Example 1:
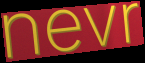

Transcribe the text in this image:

nevr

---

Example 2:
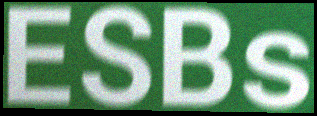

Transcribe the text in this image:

ESBs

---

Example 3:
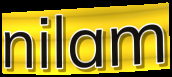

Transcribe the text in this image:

nilam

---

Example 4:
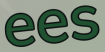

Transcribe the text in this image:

ees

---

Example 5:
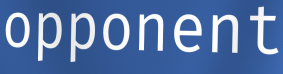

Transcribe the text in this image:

opponent